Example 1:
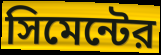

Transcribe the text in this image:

সিমেন্টের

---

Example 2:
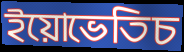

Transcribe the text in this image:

ইয়োভেতিচ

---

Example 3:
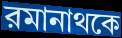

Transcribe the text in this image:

রমানাথকে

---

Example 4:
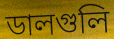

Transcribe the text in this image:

ডালগুলি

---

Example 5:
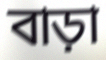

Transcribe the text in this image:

বাড়া